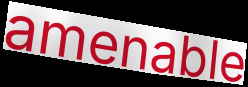
amenable